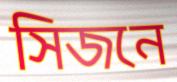
সিজনে